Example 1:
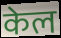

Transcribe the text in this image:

केल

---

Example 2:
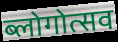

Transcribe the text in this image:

ब्लोगोत्सव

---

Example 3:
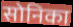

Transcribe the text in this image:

सोनिका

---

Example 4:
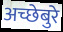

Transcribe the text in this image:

अच्छेबुरे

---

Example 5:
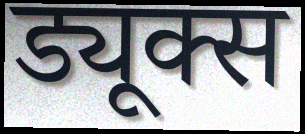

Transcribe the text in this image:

ड्यूक्स